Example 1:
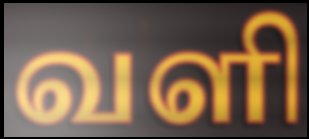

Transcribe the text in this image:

வளி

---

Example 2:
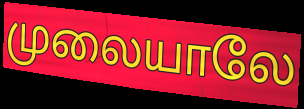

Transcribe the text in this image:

முலையாலே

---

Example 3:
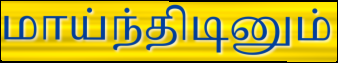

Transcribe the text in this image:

மாய்ந்திடினும்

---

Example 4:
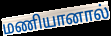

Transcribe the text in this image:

மணியானால்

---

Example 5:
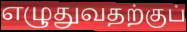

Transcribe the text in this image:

எழுதுவதற்குப்